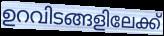
ഉറവിടങ്ങളിലേക്ക്